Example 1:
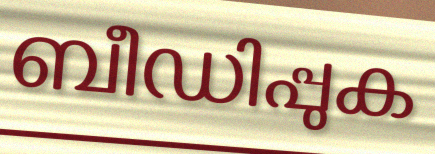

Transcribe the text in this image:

ബീഡിപ്പുക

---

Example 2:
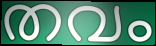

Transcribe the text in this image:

തവം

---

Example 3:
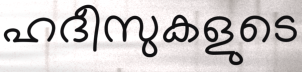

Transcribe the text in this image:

ഹദീസുകളുടെ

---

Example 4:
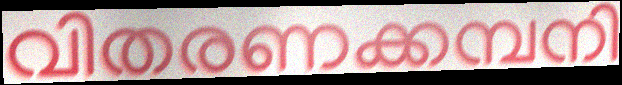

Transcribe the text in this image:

വിതരണക്കമ്പനി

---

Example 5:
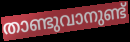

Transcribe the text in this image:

താണ്ടുവാനുണ്ട്